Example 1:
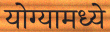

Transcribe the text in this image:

योग्यामध्ये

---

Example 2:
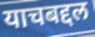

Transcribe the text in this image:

याचबद्दल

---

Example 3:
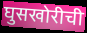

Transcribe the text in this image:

घुसखोरीची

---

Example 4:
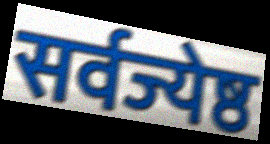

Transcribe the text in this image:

सर्वज्येष्ठ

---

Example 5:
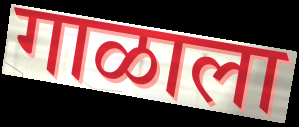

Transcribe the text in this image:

गाळाला